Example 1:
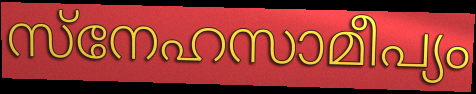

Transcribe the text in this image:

സ്നേഹസാമീപ്യം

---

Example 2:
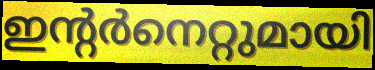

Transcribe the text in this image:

ഇന്റർനെറ്റുമായി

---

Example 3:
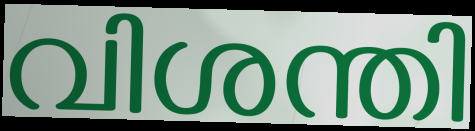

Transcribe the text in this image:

വിശന്തി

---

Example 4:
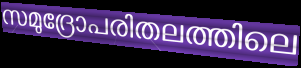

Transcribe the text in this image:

സമുദ്രോപരിതലത്തിലെ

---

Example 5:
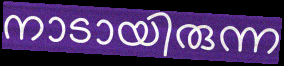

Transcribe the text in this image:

നാടായിരുന്ന